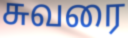
சுவரை